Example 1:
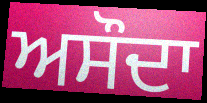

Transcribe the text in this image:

ਅਸੌਦਾ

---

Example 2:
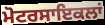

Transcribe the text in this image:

ਮੋਟਰਸਾਇਕਲਾਂ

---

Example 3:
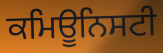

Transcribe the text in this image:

ਕਮਿਊਨਿਸਟੀ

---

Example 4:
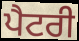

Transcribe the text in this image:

ਪੈਟਰੀ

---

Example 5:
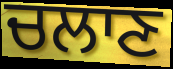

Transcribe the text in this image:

ਚਲਾਣ